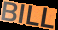
BILL